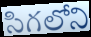
సిగలోని